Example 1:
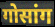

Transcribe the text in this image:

गोसांग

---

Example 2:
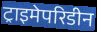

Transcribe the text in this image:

ट्राइमेपरिडीन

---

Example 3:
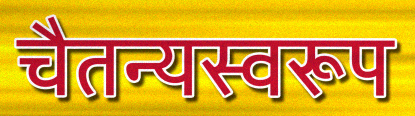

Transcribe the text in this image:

चैतन्यस्वरूप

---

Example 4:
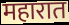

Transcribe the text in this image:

महारात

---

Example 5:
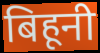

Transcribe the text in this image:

बिहूनी